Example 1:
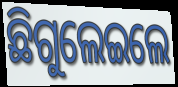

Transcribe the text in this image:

ଛିଗୁଲେଇଲେ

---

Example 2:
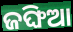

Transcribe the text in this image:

ଜଙ୍ଘିଆ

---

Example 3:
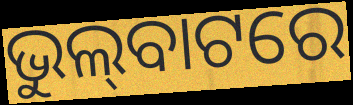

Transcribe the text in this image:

ଭୁଲ୍‌ବାଟରେ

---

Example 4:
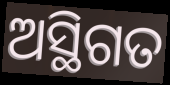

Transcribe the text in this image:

ଅସ୍ଥିଗତ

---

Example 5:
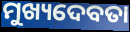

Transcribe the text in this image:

ମୁଖ୍ୟଦେବତା